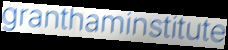
granthaminstitute